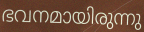
ഭവനമായിരുന്നു